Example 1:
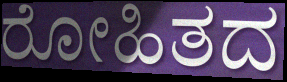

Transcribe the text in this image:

ರೋಹಿತದ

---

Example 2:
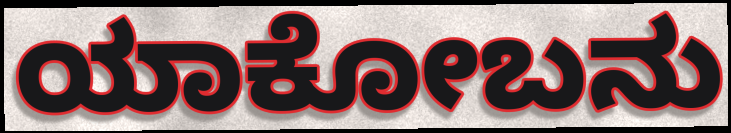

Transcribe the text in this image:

ಯಾಕೋಬನು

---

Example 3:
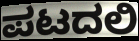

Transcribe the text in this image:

ಪಟದಲಿ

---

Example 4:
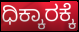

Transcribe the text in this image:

ಧಿಕ್ಕಾರಕ್ಕೆ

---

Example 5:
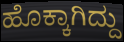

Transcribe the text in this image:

ಹೊಕ್ಕಾಗಿದ್ದು